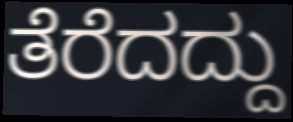
ತೆರೆದದ್ದು